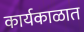
कार्यकाळात